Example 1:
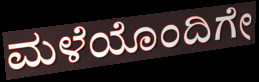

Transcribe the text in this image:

ಮಳೆಯೊಂದಿಗೇ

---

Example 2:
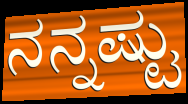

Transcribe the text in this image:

ನನ್ನಷ್ಟು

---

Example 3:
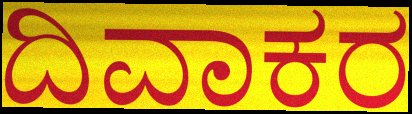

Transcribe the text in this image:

ದಿವಾಕರ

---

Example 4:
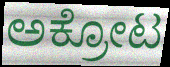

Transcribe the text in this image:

ಅಕ್ರೋಟ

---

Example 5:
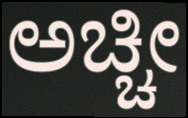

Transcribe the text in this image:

ಅಚ್ಚೀ